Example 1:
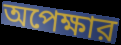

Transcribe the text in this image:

অপেক্ষার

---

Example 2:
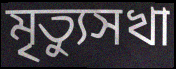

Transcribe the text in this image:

মৃত্যুসখা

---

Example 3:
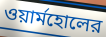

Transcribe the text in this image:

ওয়ার্মহোলের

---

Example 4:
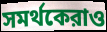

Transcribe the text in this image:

সমর্থকেরাও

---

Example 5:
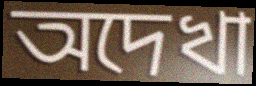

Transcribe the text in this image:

অদেখা